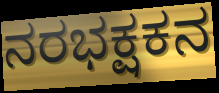
ನರಭಕ್ಷಕನ